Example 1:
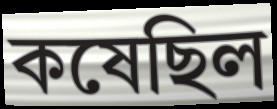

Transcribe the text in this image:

কষেছিল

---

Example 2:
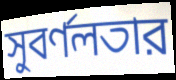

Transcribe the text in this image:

সুবর্ণলতার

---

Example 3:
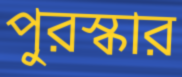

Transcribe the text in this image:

পুরস্কার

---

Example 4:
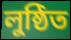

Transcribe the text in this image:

লুষ্ঠিত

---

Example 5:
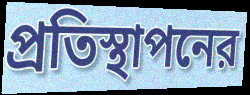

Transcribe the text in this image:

প্রতিস্থাপনের